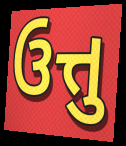
ઉત્તુ